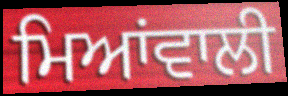
ਮਿਆਂਵਾਲੀ